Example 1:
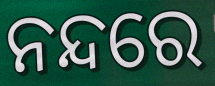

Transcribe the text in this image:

ନନ୍ଦରେ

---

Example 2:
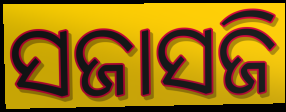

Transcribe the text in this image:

ସଜାସଜି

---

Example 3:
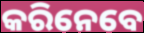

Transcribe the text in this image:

କରିନେବେ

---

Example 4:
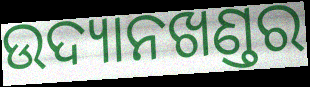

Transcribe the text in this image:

ଉଦ୍ୟାନଖଣ୍ଡର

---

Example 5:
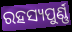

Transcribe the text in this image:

ରହସ୍ୟପୁର୍ଣ୍ଣ